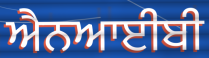
ਐਨਆਈਬੀ